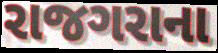
રાજગરાના